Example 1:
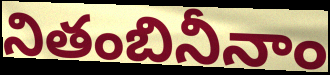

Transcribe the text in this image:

నితంబినీనాం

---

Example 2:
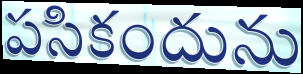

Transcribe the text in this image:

పసికందును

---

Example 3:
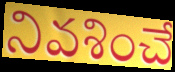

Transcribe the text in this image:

నివశించే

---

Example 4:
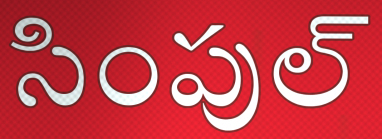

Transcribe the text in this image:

సింపుల్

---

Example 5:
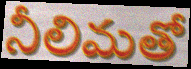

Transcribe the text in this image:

నీలిమతో